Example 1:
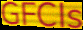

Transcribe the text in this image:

GFCIs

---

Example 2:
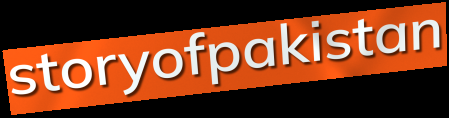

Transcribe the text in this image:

storyofpakistan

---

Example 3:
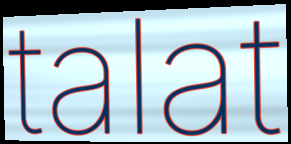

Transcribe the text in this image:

talat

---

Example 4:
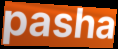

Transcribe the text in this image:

pasha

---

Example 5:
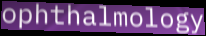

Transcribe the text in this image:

ophthalmology